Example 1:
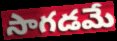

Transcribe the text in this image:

సాగడమే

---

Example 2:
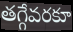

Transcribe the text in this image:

తగ్గేవరకూ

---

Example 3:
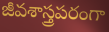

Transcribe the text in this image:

జీవశాస్త్రపరంగా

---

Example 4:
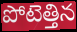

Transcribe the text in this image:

పోటెత్తిన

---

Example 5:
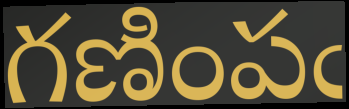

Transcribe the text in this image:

గణింపఁ